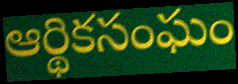
ఆర్థికసంఘం